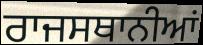
ਰਾਜਸਥਾਨੀਆਂ